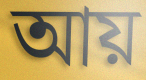
আয়